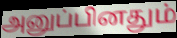
அனுப்பினதும்